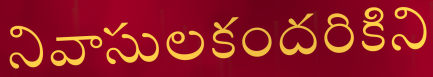
నివాసులకందరికిని